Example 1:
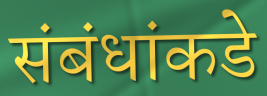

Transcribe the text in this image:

संबंधांकडे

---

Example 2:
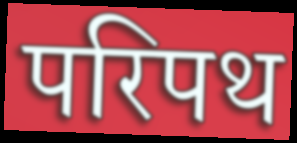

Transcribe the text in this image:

परिपथ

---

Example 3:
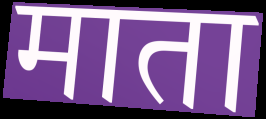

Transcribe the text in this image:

माता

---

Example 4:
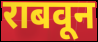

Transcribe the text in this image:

राबवून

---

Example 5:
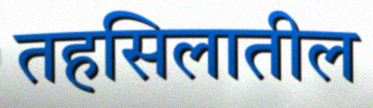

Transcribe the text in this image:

तहसिलातील